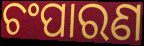
ଚଂପାରଣ